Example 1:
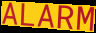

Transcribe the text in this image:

ALARM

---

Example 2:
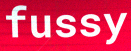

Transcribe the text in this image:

fussy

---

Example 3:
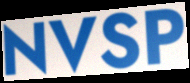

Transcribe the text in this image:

NVSP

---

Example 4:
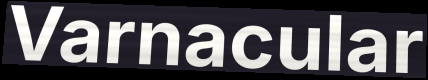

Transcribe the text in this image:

Varnacular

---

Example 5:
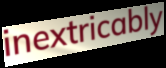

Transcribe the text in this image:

inextricably